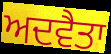
ਅਦਵੈਤਾ